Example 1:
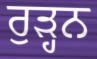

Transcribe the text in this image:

ਰੁੜ੍ਹਨ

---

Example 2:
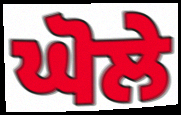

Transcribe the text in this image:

ਘੋਲੇ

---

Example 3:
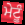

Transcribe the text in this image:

ਮੇਟੂੰ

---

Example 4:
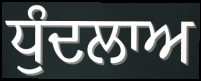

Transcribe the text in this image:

ਧੁੰਦਲਾਅ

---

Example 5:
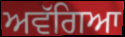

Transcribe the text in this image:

ਅਵੱਗਿਆ